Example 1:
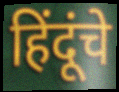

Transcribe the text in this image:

हिंदूंचे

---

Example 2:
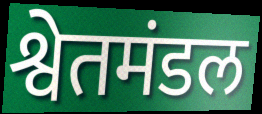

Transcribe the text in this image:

श्वेतमंडल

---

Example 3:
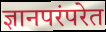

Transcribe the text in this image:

ज्ञानपरंपरेत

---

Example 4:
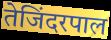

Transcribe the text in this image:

तेजिंदरपाल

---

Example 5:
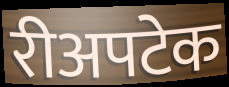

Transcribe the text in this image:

रीअपटेक